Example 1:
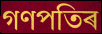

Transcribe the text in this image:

গণপতিৰ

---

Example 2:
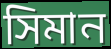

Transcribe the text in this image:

সিমান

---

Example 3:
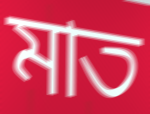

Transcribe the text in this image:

মাত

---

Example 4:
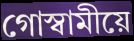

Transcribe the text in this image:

গোস্বামীয়ে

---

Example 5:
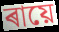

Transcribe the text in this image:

ৰায়ে